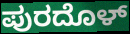
ಪುರದೊಳ್